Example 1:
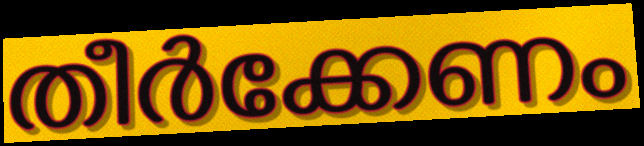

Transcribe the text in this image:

തീർക്കേണം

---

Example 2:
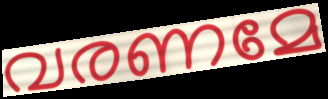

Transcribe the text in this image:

വരണമേ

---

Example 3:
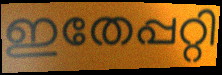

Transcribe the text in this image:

ഇതേപ്പറ്റി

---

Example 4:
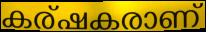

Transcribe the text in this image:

കര്ഷകരാണ്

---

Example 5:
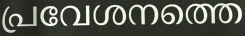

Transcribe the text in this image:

പ്രവേശനത്തെ